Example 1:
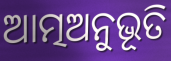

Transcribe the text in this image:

ଆତ୍ମଅନୁଭୂତି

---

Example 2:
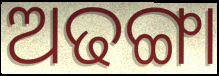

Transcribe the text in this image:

ଅଢଙ୍ଗା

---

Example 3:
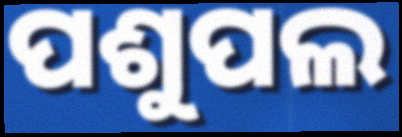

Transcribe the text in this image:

ପଶୁପଲ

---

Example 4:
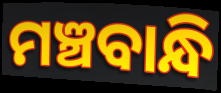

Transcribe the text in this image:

ମଞ୍ଚବାନ୍ଧି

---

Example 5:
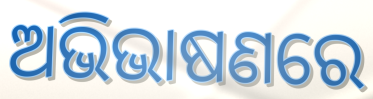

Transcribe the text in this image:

ଅଭିଭାଷଣରେ